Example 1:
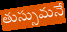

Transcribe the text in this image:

తుస్సుమనే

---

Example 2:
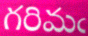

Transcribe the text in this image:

గరిమఁ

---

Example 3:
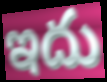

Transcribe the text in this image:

ఇదు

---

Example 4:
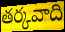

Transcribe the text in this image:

తర్కవాది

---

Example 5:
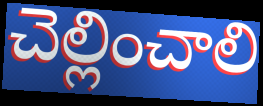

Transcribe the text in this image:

చెల్లించాలి